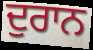
ਦੁਰਾਨ